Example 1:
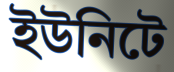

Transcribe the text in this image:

ইউনিটে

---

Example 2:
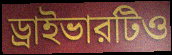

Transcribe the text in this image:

ড্রাইভারটিও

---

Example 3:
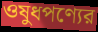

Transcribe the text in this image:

ওষুধপণ্যের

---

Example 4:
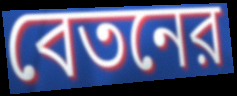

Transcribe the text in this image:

বেতনের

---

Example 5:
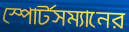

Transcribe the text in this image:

স্পোর্টসম্যানের